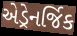
એડ્રેનર્જિક